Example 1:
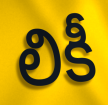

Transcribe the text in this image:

లికీ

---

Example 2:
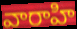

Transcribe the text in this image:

వారాహి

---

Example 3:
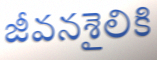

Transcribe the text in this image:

జీవనశైలికి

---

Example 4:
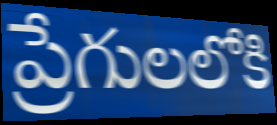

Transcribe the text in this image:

ప్రేగులలోకి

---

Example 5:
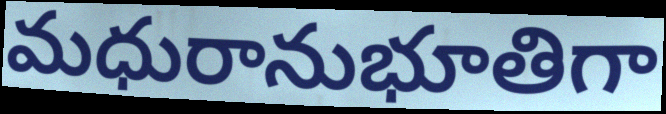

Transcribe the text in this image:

మధురానుభూతిగా